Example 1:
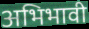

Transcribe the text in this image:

अभिभावी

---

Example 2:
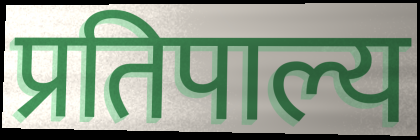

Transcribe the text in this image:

प्रतिपाल्य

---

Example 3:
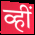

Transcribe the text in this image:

व्हीं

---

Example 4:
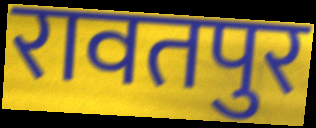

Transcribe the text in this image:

रावतपुर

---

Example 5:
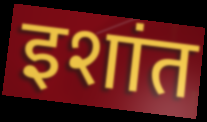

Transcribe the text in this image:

इशांत